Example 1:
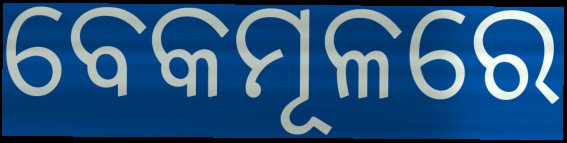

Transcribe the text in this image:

ବେକମୂଳରେ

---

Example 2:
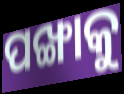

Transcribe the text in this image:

ପଙ୍ଖାକୁ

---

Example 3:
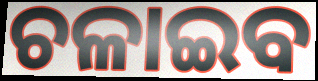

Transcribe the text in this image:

ଚଳାଇବ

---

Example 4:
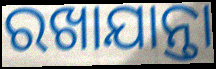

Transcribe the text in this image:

ରଖାଯାନ୍ତା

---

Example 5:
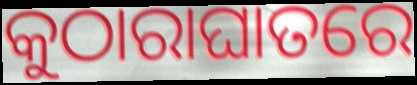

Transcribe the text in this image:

କୁଠାରାଘାତରେ